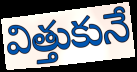
విత్తుకునే